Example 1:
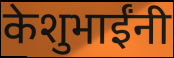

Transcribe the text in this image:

केशुभाईंनी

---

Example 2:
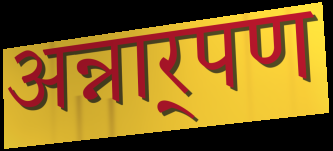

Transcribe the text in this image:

अन्नार्पण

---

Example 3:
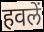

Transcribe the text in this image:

हवलें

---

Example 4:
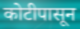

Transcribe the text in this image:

कोटीपासून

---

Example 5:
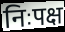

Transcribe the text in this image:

निःपक्ष